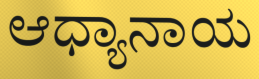
ಆಧ್ಯಾನಾಯ